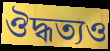
ঔদ্ধত্যও